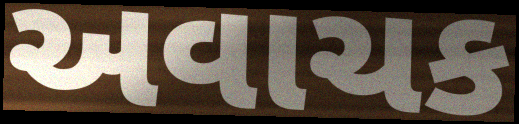
અવાચક